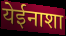
येईनाशा